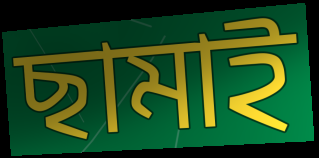
ছামাই